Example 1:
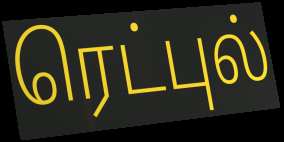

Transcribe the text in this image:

ரெட்புல்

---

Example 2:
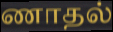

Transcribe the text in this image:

ணாதல்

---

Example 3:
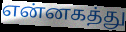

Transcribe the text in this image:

என்னகத்து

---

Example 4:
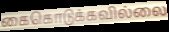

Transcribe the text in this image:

கைகொடுக்கவில்லை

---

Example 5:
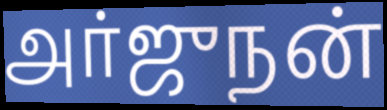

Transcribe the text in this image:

அர்ஜுநன்